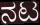
ನಟ